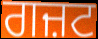
ਗਜ਼ਟ